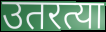
उतरत्या